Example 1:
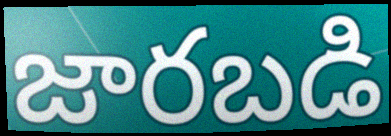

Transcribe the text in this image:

జారబడి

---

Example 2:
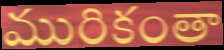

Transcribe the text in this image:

మురికంతా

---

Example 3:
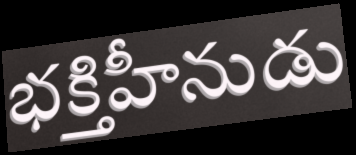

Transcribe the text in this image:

భక్తిహీనుడు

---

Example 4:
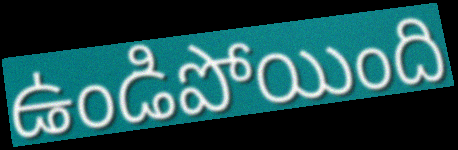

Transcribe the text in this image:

ఉండిపోయింది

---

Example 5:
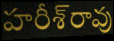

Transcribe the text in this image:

హరీశ్‌రావు